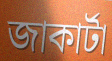
জাকাৰ্টা